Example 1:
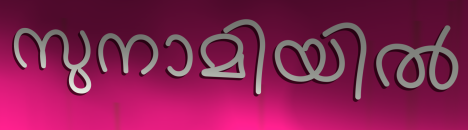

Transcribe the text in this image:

സുനാമിയിൽ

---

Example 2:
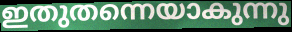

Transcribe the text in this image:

ഇതുതന്നെയാകുന്നു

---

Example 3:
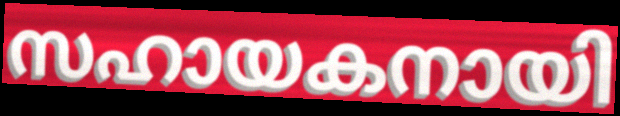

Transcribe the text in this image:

സഹായകനായി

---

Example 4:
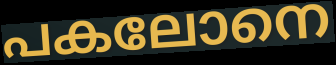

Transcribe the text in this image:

പകലോനെ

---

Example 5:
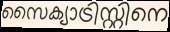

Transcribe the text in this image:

സൈക്യാട്രിസ്റ്റിനെ